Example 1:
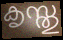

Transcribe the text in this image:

കൃസ്തു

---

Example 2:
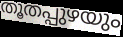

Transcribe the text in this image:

തൂതപ്പുഴയും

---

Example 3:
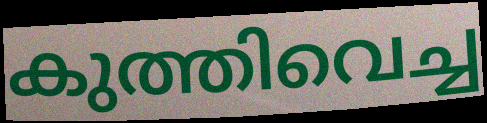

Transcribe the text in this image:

കുത്തിവെച്ച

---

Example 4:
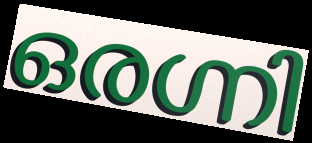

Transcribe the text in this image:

ഒരഗ്നി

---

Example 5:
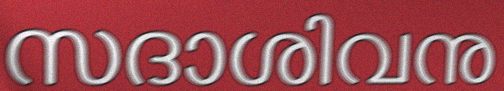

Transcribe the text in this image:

സദാശിവനു